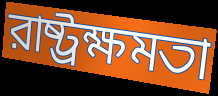
রাষ্ট্রক্ষমতা